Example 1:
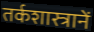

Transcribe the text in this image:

तर्कशास्त्रानें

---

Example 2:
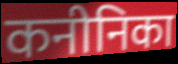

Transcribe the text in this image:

कनीनिका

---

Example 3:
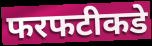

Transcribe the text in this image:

फरफटीकडे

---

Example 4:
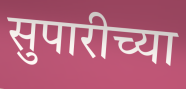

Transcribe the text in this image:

सुपारीच्या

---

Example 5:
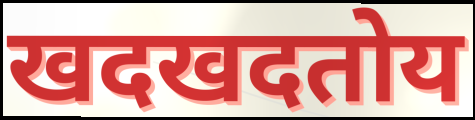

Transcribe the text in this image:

खदखदतोय